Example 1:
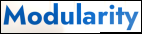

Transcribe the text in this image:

Modularity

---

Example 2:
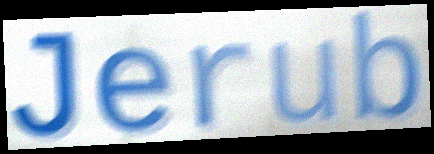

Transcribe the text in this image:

Jerub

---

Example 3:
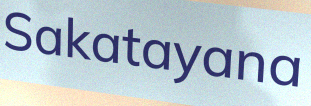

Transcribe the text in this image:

Sakatayana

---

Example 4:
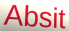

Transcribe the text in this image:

Absit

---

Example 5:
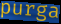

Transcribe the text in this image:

purga